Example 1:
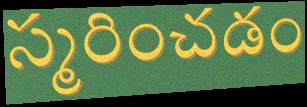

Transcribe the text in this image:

స్మరించడం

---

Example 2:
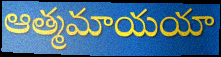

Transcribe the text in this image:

ఆత్మమాయయా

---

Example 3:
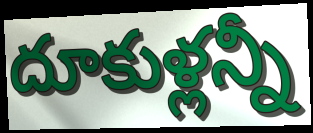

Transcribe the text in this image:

దూకుళ్లన్నీ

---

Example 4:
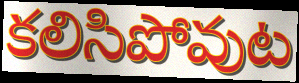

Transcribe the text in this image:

కలిసిపోవుట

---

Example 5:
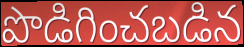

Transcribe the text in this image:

పొడిగించబడిన